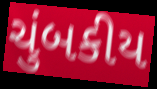
ચુંબકીય